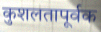
कुशलतापूर्वक